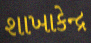
શાખાકેન્દ્ર